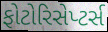
ફોટોરિસેપ્ટર્સ